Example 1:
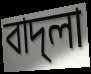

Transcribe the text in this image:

বাদ্‌লা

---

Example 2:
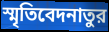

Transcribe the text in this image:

স্মৃতিবেদনাতুর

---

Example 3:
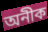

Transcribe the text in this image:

অনীক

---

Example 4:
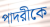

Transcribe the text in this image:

পাদরীকে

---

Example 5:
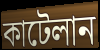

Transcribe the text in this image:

কাটেলান